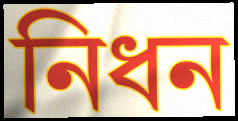
নিধন